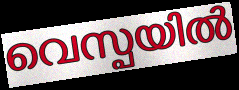
വെസ്പയിൽ